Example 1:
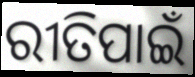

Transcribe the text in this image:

ରୀତିପାଇଁ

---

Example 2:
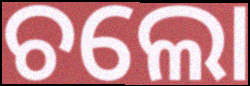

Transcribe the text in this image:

ଚଲୋ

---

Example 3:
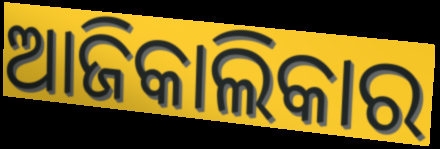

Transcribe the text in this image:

ଆଜିକାଲିକାର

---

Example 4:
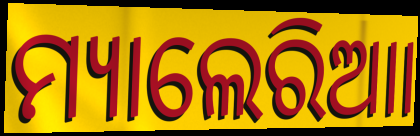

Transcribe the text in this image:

ମ୍ୟାଲେରିଆା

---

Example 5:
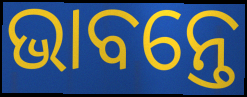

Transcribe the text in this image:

ଭାବନ୍ତେ